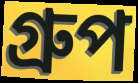
গ্রুপ